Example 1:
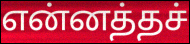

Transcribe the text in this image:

என்னத்தச்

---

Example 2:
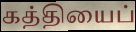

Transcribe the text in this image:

கத்தியைப்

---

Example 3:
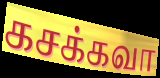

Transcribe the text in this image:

கசக்கவா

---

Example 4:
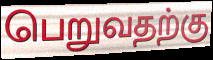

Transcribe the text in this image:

பெறுவதற்கு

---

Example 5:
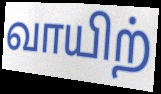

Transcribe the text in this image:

வாயிற்